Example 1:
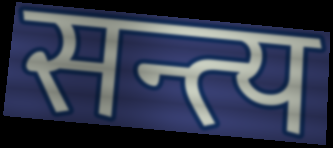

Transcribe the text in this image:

सन्त्य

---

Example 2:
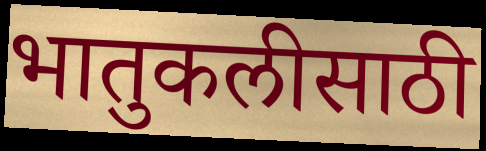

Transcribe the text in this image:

भातुकलीसाठी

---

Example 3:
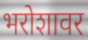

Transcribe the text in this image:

भरोशावर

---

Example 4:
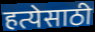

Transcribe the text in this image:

हत्येसाठी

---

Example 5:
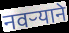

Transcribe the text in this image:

नवऱ्याने